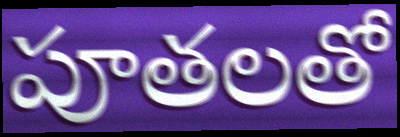
పూతలతో